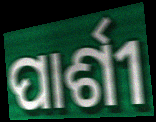
ପାର୍ଶୀ